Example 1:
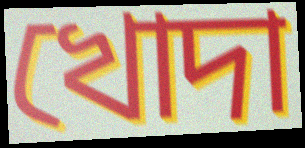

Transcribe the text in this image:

খোদা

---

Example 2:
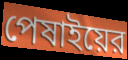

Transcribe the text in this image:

পেষাইয়ের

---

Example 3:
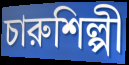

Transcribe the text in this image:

চারুশিল্পী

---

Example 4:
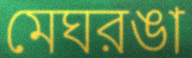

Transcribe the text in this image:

মেঘরঙা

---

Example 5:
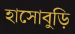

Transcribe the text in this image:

হাসোবুড়ি